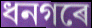
ধনগৰে